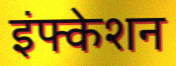
इंफ्केशन